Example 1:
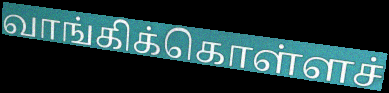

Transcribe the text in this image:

வாங்கிக்கொள்ளச்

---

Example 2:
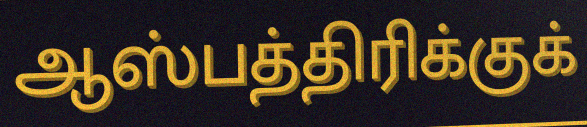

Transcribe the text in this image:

ஆஸ்பத்திரிக்குக்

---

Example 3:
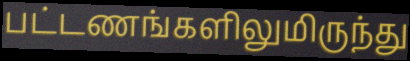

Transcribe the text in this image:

பட்டணங்களிலுமிருந்து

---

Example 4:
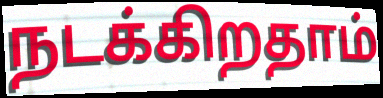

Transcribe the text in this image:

நடக்கிறதாம்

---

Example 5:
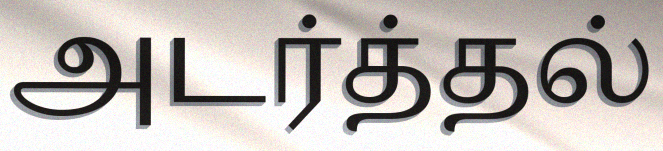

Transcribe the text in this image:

அடர்த்தல்